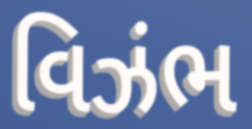
વિઝંભ